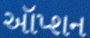
ઑપ્શન